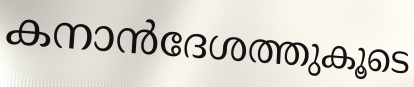
കനാൻദേശത്തുകൂടെ